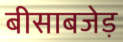
बीसाबजेड़